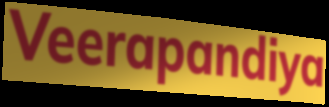
Veerapandiya